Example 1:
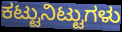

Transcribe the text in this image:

ಕಟ್ಟುನಿಟ್ಟುಗಳು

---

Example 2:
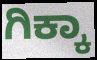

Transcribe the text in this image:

ಗಿಕ್ಕಾ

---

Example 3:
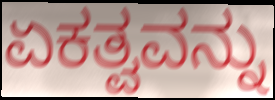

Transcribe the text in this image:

ಏಕತ್ವವನ್ನು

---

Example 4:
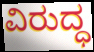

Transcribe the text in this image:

ವಿರುದ್ಧ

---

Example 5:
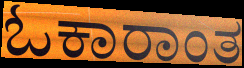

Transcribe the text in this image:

ಓಕಾರಾಂತ